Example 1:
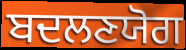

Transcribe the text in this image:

ਬਦਲਣਯੋਗ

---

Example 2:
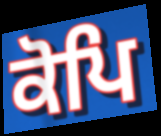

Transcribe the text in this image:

ਕੋਪਿ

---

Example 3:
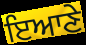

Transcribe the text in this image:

ਇਆਣੇ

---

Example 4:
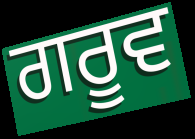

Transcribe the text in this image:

ਗਰੂਵ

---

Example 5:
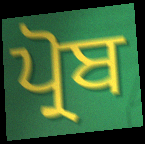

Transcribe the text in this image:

ਪ੍ਰੋਬ